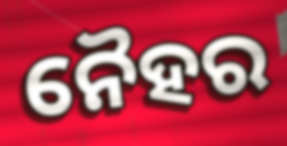
ନୈହର